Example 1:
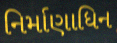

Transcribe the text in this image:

નિર્માણાધિન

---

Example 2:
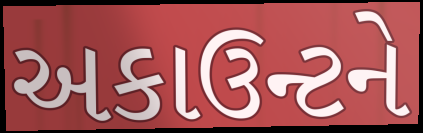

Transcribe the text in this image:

અકાઉન્ટને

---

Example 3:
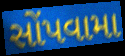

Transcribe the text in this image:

સોંપવામા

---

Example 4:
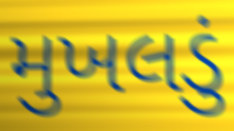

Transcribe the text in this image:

મુખલડું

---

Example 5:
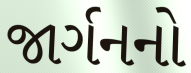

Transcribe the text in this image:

જાર્ગનનો